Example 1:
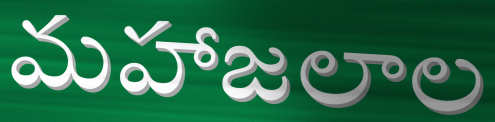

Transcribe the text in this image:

మహాజలాల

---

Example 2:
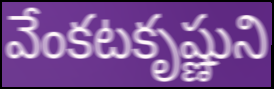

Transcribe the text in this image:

వేంకటకృష్ణుని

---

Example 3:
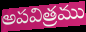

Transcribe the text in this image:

అపవిత్రము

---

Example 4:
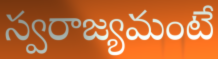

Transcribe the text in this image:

స్వరాజ్యమంటే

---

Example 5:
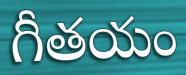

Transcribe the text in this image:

గీతయం